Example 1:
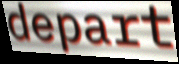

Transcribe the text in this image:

depart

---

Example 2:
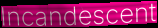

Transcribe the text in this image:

Incandescent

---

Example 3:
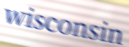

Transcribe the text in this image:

wisconsin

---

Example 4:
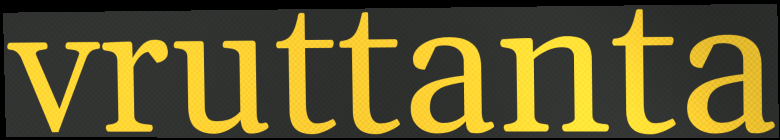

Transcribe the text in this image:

vruttanta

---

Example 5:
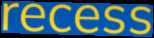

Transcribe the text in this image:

recess